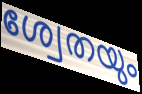
ശ്വേതയും